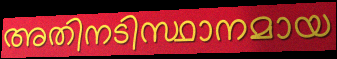
അതിനടിസ്ഥാനമായ